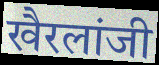
खैरलांजी